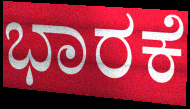
ಭಾರಕೆ